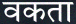
वकता